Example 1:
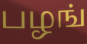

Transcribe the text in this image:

பழங்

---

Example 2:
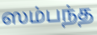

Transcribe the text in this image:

ஸம்பந்த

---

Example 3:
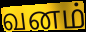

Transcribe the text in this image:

வனம்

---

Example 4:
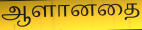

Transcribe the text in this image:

ஆளானதை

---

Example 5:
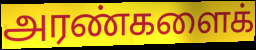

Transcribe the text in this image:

அரண்களைக்